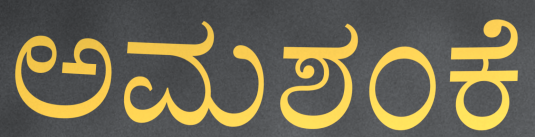
ಅಮಶಂಕೆ